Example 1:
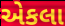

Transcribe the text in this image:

એકલા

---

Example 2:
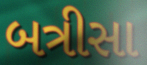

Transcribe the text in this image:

બત્રીસા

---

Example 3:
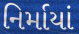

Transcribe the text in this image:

નિર્માયાં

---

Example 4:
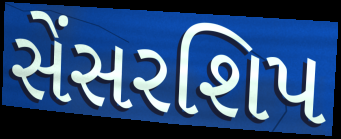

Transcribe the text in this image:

સેંસરશિપ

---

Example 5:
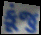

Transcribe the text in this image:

કૂંજુ